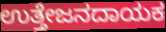
ಉತ್ತೇಜನದಾಯಕ